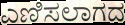
ಎಣಿಸಲಾಗದ